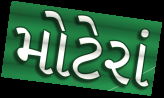
મોટેરાં